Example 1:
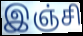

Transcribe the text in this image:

இஞ்சி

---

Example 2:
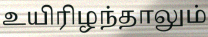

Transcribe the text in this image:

உயிரிழந்தாலும்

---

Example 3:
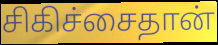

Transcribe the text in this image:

சிகிச்சைதான்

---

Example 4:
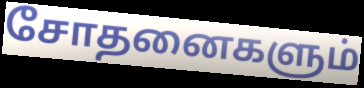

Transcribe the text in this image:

சோதனைகளும்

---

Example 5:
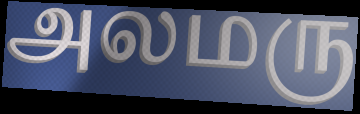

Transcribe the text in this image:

அலமரு